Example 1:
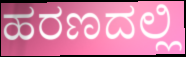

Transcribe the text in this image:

ಹರಣದಲ್ಲಿ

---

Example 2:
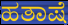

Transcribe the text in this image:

ಹತಾಷೆ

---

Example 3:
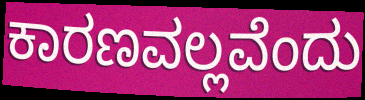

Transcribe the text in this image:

ಕಾರಣವಲ್ಲವೆಂದು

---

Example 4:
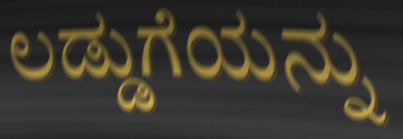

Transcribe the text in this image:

ಲಡ್ಡುಗೆಯನ್ನು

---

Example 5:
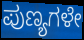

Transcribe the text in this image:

ಪುಣ್ಯಗಳೇ